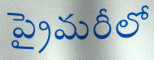
ప్రైమరీలో